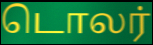
டொலர்